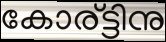
കോര്ട്ടിനു